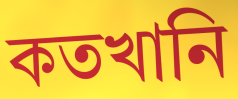
কতখানি